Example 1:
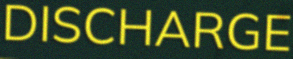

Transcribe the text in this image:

DISCHARGE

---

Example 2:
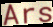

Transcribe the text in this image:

Ars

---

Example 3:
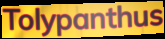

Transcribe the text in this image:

Tolypanthus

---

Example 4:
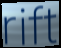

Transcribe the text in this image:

rift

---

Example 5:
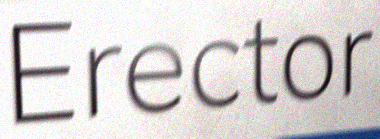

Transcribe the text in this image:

Erector